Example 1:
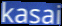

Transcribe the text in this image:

kasai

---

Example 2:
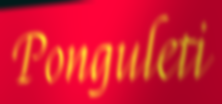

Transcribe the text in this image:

Ponguleti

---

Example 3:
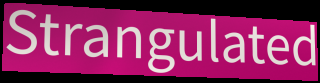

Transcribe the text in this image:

Strangulated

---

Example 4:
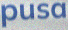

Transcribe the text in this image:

pusa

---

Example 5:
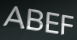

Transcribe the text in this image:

ABEF